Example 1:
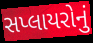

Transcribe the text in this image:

સપ્લાયરોનું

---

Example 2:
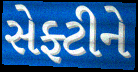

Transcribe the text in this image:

સેફ્ટીને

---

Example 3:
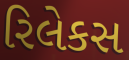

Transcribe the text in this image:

રિલેકસ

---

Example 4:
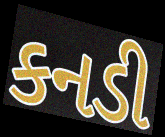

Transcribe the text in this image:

કનડી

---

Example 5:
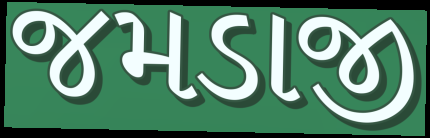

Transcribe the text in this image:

જમડાજી